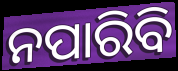
ନପାରିବି